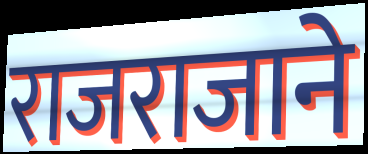
राजराजाने